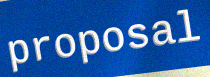
proposal